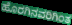
ಹೊರಗಿನವರಿಗಿಂತ